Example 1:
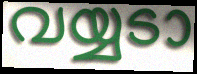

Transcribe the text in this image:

വയ്യടാ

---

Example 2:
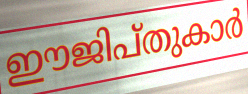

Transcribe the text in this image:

ഈജിപ്തുകാർ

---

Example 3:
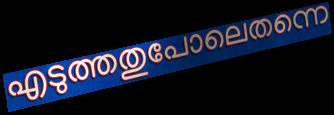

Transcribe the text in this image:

എടുത്തതുപോലെതന്നെ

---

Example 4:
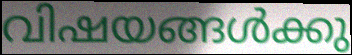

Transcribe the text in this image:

വിഷയങ്ങൾക്കു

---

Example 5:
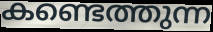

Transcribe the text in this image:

കണ്ടെത്തുന്ന